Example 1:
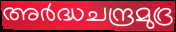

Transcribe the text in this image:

അർദ്ധചന്ദ്രമുദ്ര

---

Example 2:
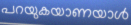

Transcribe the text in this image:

പറയുകയാണയാൾ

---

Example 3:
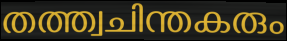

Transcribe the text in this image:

തത്ത്വചിന്തകരും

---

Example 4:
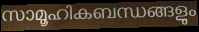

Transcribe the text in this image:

സാമൂഹികബന്ധങ്ങളും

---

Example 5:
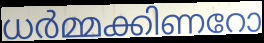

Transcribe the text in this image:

ധർമ്മക്കിണറോ